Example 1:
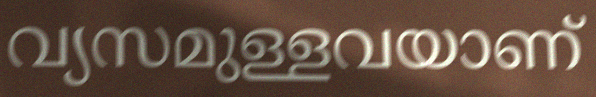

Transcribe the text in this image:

വ്യസമുള്ളവയാണ്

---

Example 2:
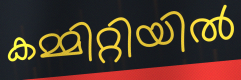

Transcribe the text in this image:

കമ്മിറ്റിയിൽ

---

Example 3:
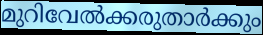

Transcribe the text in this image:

മുറിവേൽക്കരുതാർക്കും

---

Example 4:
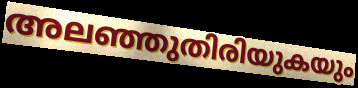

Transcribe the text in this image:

അലഞ്ഞുതിരിയുകയും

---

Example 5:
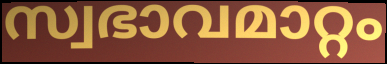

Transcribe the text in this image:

സ്വഭാവമാറ്റം